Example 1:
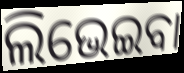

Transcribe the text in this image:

ଲିଭେଇବା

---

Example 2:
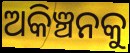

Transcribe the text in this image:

ଅକିଞ୍ଚନକୁ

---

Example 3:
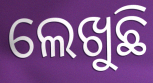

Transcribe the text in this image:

ଲେଖୁଛି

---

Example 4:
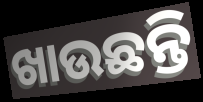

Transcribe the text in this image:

ଖାଉଛନ୍ତି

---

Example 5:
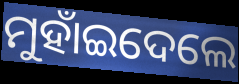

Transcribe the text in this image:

ମୁହାଁଇଦେଲେ